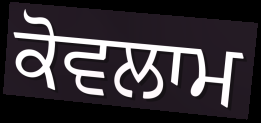
ਕੋਵਲਾਮ